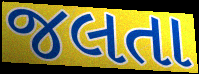
જલતા